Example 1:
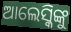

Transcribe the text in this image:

ଆଲେସ୍କିଙ୍କୁ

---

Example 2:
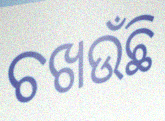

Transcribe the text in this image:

ଚଖଉଁଛି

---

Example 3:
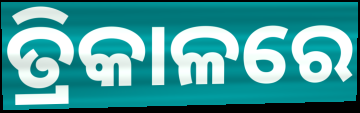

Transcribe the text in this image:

ତ୍ରିକାଳରେ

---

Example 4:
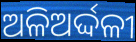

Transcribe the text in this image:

ଅଳିଅର୍ଦ୍ଦଳୀ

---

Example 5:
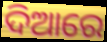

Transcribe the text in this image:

ଦିଆରେ